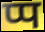
प्प